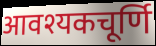
आवश्यकचूर्णि